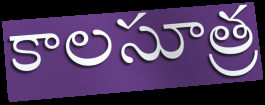
కాలసూత్ర